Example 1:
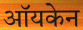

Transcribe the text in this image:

ऑयकेन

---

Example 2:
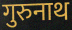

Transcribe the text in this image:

गुरुनाथ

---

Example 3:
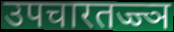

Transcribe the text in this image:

उपचारतज्ज्ञ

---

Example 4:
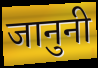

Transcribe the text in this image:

जानुनी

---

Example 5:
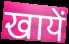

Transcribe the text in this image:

खायें